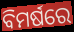
ବିମର୍ଷରେ